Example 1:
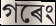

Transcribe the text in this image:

গৰেং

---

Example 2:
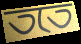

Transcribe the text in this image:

ততে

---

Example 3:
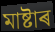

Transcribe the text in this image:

মাষ্টাৰ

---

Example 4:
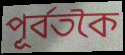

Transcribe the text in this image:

পূৰ্বতকৈ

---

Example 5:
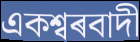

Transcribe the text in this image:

একশ্বৰবাদী